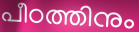
പീഠത്തിനും